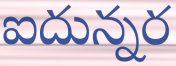
ఐదున్నర